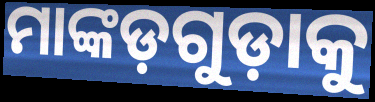
ମାଙ୍କଡ଼ଗୁଡ଼ାକୁ